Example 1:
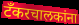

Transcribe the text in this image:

टँकरचालकांना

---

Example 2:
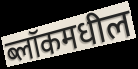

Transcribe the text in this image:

ब्लॉकमधील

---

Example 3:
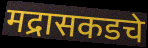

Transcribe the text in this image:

मद्रासकडचे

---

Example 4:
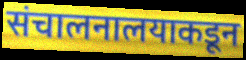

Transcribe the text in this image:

संचालनालयाकडून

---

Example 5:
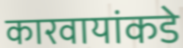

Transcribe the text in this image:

कारवायांकडे